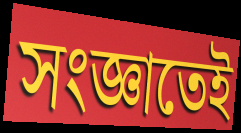
সংজ্ঞাতেই